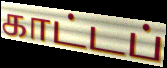
காட்டப்